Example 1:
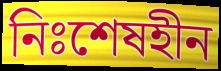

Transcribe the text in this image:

নিঃশেষহীন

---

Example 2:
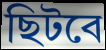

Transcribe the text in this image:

ছিটবে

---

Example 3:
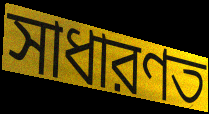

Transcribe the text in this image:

সাধারণত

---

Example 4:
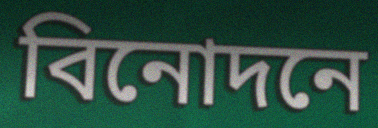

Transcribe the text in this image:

বিনোদনে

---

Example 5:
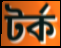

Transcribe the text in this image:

টর্ক